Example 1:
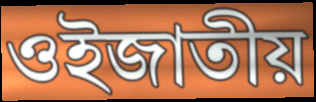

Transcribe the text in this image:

ওইজাতীয়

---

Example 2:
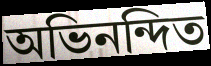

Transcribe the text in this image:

অভিনন্দিত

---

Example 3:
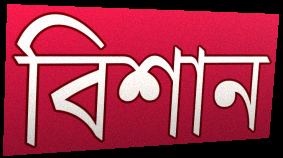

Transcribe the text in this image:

বিশান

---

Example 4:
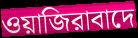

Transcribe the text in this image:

ওয়াজিরাবাদে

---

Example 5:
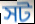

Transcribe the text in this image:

সট